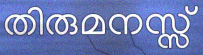
തിരുമനസ്സ്